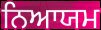
ਨਿਆਯਮ